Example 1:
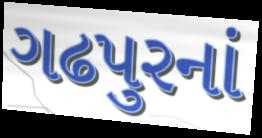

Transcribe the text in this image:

ગઢપુરનાં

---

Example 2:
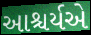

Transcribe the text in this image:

આશ્ચર્યએ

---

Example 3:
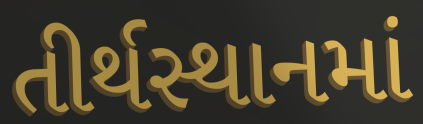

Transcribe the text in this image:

તીર્થસ્થાનમાં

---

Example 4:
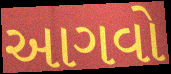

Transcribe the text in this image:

આગવો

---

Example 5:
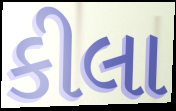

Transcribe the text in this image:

કીલા